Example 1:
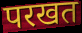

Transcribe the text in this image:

परखत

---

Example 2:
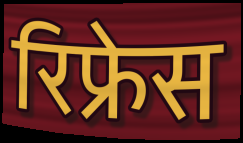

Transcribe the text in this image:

रिफ्रेस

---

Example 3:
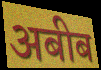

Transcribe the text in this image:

अबीब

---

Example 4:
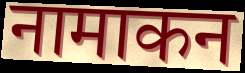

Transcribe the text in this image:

नामाकन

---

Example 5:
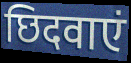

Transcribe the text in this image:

छिदवाएं